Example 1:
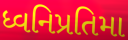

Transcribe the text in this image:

ધ્વનિપ્રતિમા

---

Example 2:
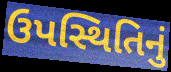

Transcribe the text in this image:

ઉપસ્થિતિનું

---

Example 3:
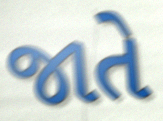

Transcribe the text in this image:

જાતે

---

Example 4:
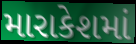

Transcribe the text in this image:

મારાકેશમાં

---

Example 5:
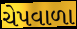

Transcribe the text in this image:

ચેપવાળા